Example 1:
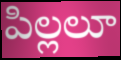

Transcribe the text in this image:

పిల్లలూ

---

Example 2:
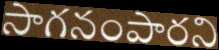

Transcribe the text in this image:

సాగనంపారని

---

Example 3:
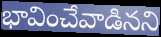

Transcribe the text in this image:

భావించేవాడినని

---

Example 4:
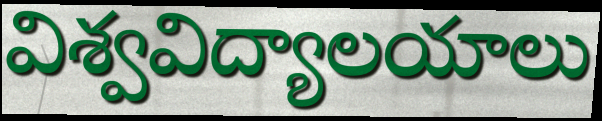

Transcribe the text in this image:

విశ్వవిద్యాలయాలు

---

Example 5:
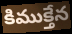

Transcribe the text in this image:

కిముక్తేన